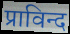
प्राविन्द